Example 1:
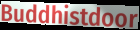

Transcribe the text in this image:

Buddhistdoor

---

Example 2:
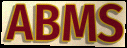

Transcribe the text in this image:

ABMS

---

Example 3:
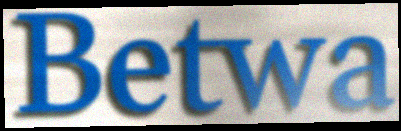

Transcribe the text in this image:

Betwa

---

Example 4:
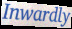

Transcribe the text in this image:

Inwardly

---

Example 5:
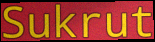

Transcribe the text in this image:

Sukrut